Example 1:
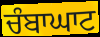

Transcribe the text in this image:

ਚੰਬਾਘਾਟ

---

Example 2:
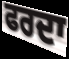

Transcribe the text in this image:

ਫਰਦਾ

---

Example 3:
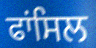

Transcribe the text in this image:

ਫਾਂਸਿਲ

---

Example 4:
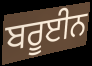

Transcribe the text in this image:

ਬਰੂਈਨ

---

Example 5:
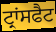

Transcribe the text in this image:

ਟ੍ਰਾਂਸਫੈਟ